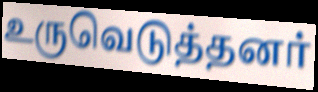
உருவெடுத்தனர்